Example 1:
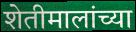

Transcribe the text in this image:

शेतीमालांच्या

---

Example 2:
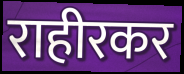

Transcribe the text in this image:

राहीरकर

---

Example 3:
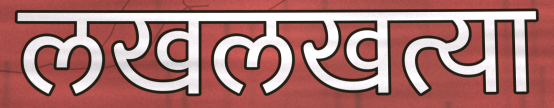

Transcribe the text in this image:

लखलखत्या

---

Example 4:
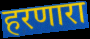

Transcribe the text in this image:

हरणारा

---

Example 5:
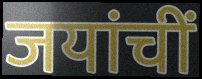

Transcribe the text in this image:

जयांचीं